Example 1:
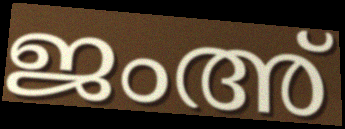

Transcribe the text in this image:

ജംഅ്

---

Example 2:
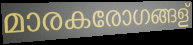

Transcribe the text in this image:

മാരകരോഗങ്ങള്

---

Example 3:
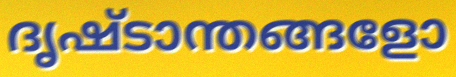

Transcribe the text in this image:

ദൃഷ്ടാന്തങ്ങളോ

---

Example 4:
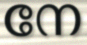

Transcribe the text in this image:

നേ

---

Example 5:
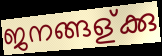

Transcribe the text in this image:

ജനങ്ങള്ക്കു